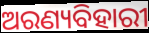
ଅରଣ୍ୟବିହାରୀ